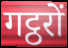
गट्ठरों